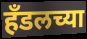
हँडलच्या